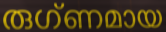
രുഗ്ണമായ